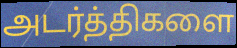
அடர்த்திகளை